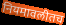
नियमावलीतच